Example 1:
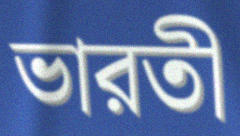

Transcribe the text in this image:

ভারতী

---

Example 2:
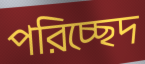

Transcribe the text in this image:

পরিচ্ছেদ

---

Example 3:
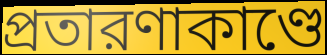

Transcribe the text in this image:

প্রতারণাকাণ্ডে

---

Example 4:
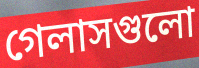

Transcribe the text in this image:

গেলাসগুলো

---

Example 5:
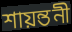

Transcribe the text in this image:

শায়ন্তনী